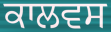
ਕਾਲਵਸ